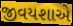
જીવયશાએ